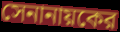
সেনানায়কের